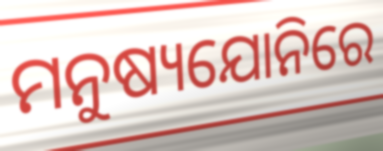
ମନୁଷ୍ୟଯୋନିରେ